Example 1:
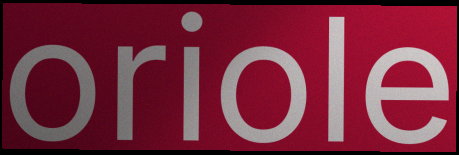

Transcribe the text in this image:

oriole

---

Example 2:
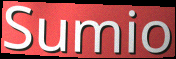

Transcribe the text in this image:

Sumio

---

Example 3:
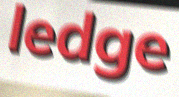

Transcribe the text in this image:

ledge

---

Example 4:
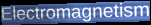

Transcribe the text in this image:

Electromagnetism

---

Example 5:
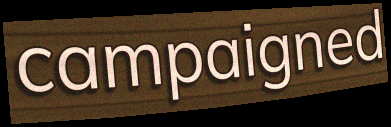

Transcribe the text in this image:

campaigned